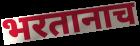
भरतानाच